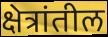
क्षेत्रांतील